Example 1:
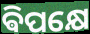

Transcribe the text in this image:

ଵିପକ୍ଷେ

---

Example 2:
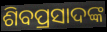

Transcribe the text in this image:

ଶିବପ୍ରସାଦଙ୍କ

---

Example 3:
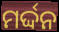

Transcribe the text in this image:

ମର୍ଦ୍ଦନ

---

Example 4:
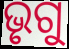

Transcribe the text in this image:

ଭୃଗୁ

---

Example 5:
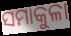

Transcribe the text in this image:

ସମାକୁଳା